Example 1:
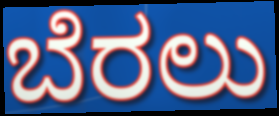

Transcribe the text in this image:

ಬೆರಲು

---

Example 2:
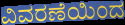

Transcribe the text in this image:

ವಿವರಣೆಯಿಂದ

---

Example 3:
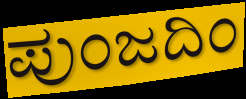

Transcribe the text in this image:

ಪುಂಜದಿಂ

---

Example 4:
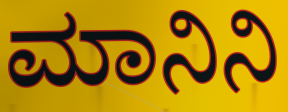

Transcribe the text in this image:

ಮಾನಿನಿ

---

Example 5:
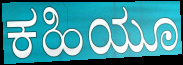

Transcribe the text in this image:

ಕಹಿಯೂ